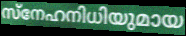
സ്നേഹനിധിയുമായ